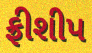
ફ્રીશીપ